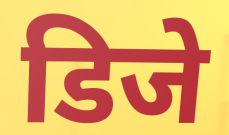
डिजे